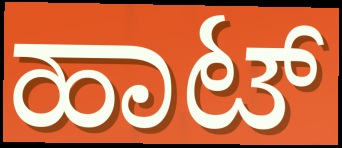
ಹಾಟ್